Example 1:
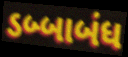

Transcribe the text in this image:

ડબ્બાબંધ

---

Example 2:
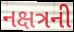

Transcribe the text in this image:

નક્ષત્રની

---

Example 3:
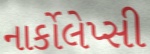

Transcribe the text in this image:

નાર્કોલેપ્સી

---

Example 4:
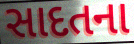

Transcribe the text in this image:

સાદતના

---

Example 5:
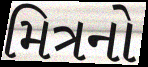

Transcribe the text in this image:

મિત્રનો